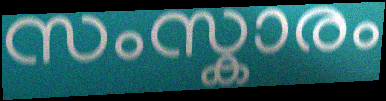
സംസ്കാരം